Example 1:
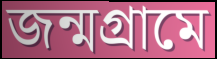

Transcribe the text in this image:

জন্মগ্রামে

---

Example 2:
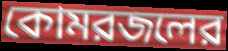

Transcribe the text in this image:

কোমরজলের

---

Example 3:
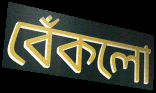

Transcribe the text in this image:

বেঁকলো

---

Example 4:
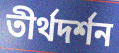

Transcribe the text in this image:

তীর্থদর্শন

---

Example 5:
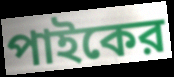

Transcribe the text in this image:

পাইকের